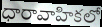
ధారావాహికలో